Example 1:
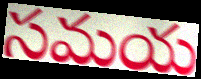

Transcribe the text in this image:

సమయ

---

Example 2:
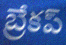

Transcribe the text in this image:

బ్రేకప్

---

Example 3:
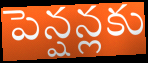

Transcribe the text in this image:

పెన్షన్లకు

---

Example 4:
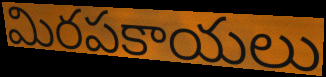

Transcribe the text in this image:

మిరపకాయలు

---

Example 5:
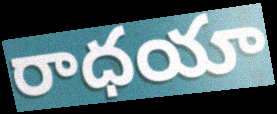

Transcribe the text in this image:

రాధయా